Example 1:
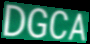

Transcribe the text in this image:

DGCA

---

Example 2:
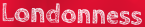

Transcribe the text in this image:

Londonness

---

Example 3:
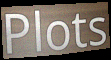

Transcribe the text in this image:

Plots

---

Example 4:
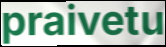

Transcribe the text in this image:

praivetu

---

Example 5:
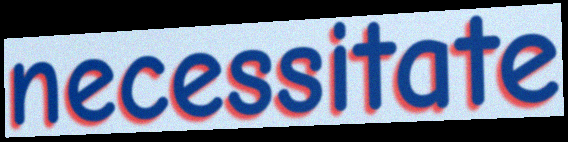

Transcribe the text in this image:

necessitate